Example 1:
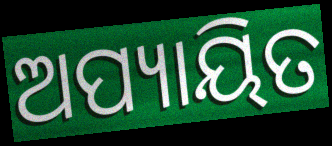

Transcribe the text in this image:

ଅପ୍ୟାୟିତ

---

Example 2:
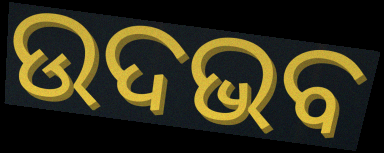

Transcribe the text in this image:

ଉଦଭବ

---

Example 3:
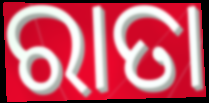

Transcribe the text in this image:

ରାତା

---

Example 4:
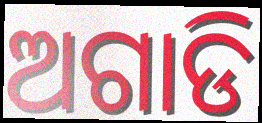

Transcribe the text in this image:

ଅଗାଡି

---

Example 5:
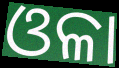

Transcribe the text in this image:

ଓଳା